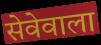
सेवेवाला